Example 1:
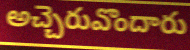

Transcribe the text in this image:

అచ్చెరువొందారు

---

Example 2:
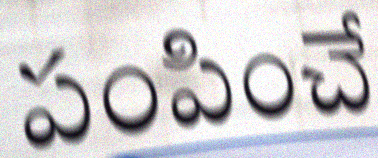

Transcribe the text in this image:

పంపించే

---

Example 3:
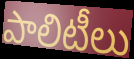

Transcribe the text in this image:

పాలిటీలు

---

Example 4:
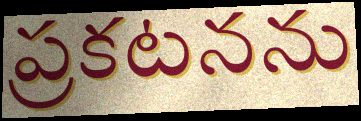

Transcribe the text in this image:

ప్రకటనను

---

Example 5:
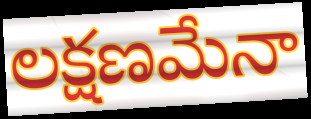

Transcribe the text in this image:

లక్షణమేనా